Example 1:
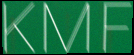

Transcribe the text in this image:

KMF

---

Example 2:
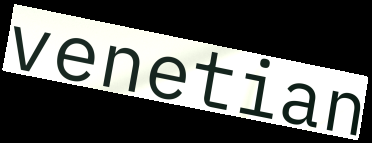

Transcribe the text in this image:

venetian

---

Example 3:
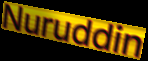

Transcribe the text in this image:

Nuruddin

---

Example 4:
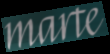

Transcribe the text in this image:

marte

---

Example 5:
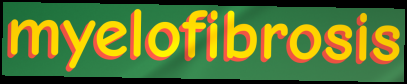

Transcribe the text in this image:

myelofibrosis